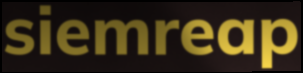
siemreap